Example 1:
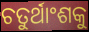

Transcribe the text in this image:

ଚତୁର୍ଥାଂଶକୁ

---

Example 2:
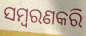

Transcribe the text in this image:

ସମ୍ବରଣକରି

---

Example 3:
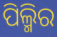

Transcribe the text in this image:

ପିଲ୍ମିର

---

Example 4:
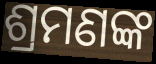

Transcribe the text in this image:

ଶ୍ରମଣଙ୍କ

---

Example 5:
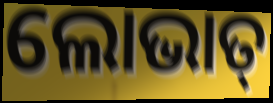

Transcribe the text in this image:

ଲୋଭାତ୍